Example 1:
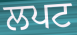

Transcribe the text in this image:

ਲਪਟ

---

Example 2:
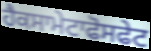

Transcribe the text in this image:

ਹੈਕਸਾਮੇਟਾਫੋਸਫੇਟ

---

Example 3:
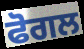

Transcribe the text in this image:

ਫੋਗਲ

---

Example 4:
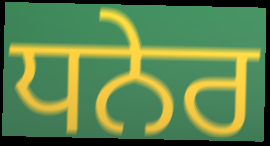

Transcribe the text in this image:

ਧਨੇਰ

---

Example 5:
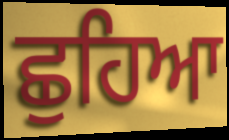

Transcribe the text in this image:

ਛੁਹਿਆ